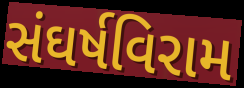
સંઘર્ષવિરામ